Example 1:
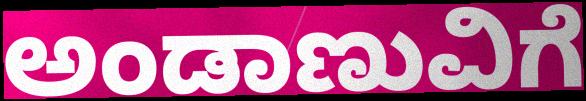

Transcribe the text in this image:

ಅಂಡಾಣುವಿಗೆ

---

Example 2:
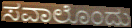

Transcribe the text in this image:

ಸವಾಲೊಂದು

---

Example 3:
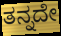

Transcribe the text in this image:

ತನ್ನದೇ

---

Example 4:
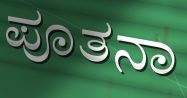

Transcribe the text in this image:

ಪೂತನಾ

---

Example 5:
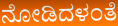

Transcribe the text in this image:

ನೋಡಿದಳಂತೆ